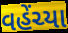
વહેંચ્યા